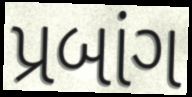
પ્રબાંગ